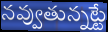
నవ్వుతున్నట్టే